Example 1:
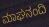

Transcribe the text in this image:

ಮಾಘನಂದಿ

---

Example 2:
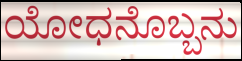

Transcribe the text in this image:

ಯೋಧನೊಬ್ಬನು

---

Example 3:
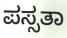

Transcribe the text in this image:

ಪಸ್ಸತಾ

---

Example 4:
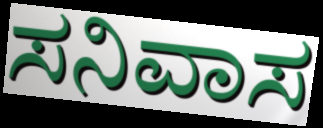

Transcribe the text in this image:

ಸನಿವಾಸ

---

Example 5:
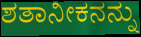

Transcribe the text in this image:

ಶತಾನೀಕನನ್ನು